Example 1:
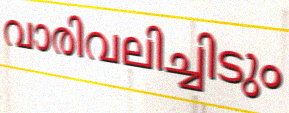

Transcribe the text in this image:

വാരിവലിച്ചിടും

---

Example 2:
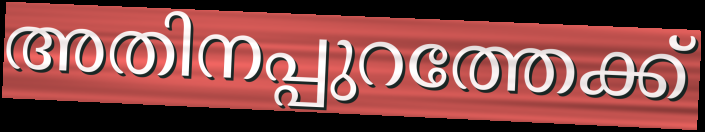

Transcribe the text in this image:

അതിനപ്പുറത്തേക്ക്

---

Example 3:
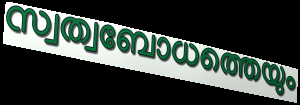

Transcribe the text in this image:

സ്വത്വബോധത്തെയും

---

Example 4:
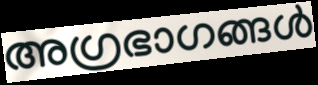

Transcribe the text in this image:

അഗ്രഭാഗങ്ങൾ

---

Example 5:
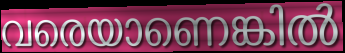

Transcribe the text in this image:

വരെയാണെങ്കിൽ